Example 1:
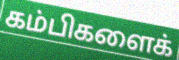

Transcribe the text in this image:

கம்பிகளைக்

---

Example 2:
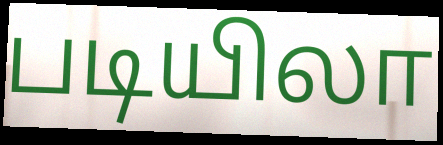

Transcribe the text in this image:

படியிலா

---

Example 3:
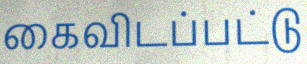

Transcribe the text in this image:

கைவிடப்பட்டு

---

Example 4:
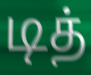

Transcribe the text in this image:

டித்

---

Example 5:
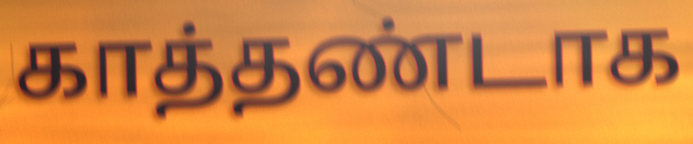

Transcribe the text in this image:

காத்தண்டாக